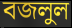
বজলুল